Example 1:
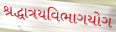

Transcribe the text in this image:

શ્રદ્ધાત્રયવિભાગયોગ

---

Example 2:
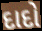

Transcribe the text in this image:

દાદો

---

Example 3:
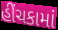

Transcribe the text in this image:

હીંચકામાં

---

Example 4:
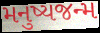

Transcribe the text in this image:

મનુષ્યજન્મ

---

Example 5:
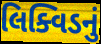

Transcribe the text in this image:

લિક્વિડનું